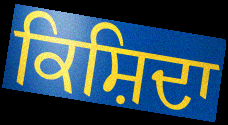
ਕਿਸ਼ਿਦਾ